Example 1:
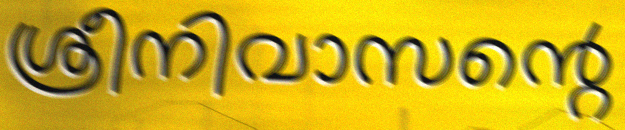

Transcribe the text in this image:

ശ്രീനിവാസന്റെ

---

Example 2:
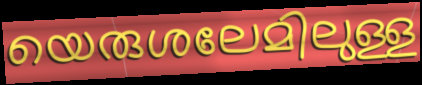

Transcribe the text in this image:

യെരുശലേമിലുള്ള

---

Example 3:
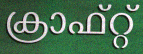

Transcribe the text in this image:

ക്രാഫ്റ്റ്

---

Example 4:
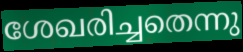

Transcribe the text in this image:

ശേഖരിച്ചതെന്നു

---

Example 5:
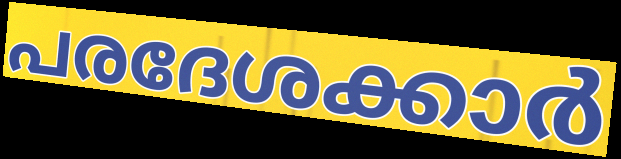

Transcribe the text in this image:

പരദേശക്കാർ